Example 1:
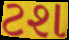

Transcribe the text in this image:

ટશ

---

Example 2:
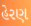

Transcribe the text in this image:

હેરણ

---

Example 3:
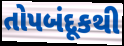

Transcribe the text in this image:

તોપબંદૂકથી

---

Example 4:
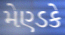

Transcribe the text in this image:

મેણ્ડકે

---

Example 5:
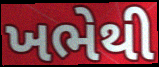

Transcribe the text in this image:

ખભેથી